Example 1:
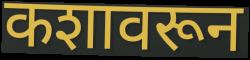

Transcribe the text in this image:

कशावरून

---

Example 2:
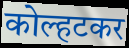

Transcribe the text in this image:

कोल्हटकर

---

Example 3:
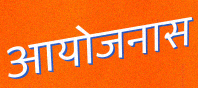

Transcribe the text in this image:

आयोजनास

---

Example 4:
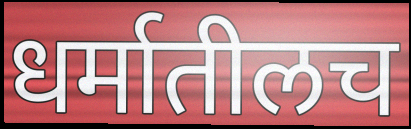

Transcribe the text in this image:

धर्मातीलच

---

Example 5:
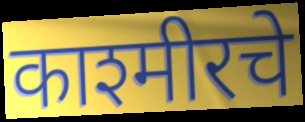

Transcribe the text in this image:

काश्मीरचे